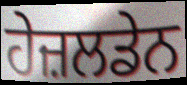
ਹੇਜ਼ਲਡੇਨ